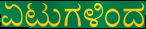
ಏಟುಗಳಿಂದ